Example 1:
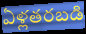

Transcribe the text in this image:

ఏళ్లతరబడి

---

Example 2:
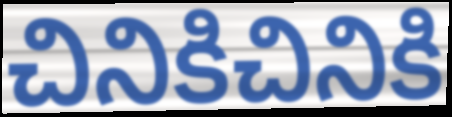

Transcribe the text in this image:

చినికిచినికి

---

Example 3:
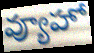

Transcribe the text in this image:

వ్యూహో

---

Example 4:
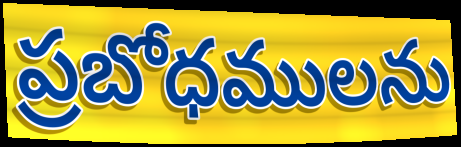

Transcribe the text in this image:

ప్రబోధములను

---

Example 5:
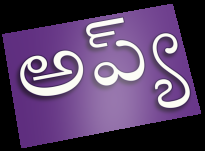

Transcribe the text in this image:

అప్య్